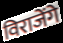
विराजेंगे